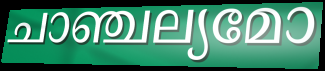
ചാഞ്ചല്യമോ